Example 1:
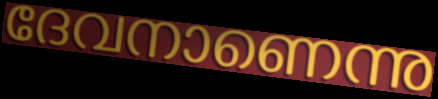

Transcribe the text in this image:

ദേവനാണെന്നു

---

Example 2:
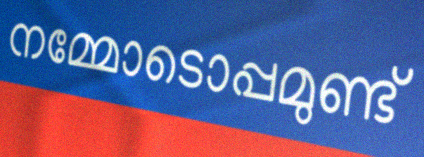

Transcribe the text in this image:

നമ്മോടൊപ്പമുണ്ട്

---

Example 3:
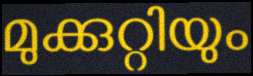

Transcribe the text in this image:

മുക്കുറ്റിയും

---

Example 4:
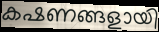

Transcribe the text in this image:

കഷണങ്ങളായി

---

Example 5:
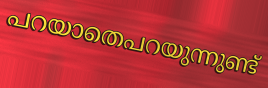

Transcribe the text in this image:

പറയാതെപറയുന്നുണ്ട്